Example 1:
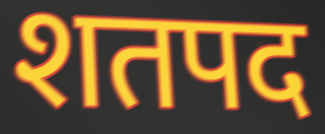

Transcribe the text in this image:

शतपद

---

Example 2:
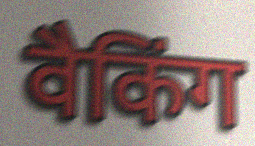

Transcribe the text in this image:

वैकिंग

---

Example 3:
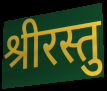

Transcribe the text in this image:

श्रीरस्तु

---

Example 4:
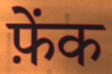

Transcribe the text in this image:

फ़ेंक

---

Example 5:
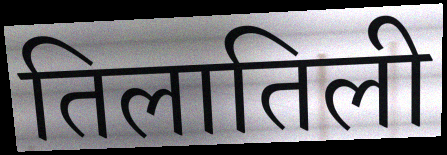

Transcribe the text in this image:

तिलातिली